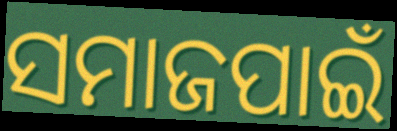
ସମାଜପାଇଁ